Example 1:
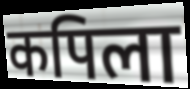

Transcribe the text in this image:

कपिला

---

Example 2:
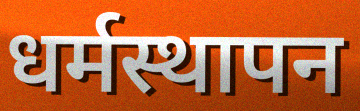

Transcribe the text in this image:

धर्मस्थापन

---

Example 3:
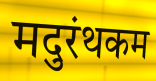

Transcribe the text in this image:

मदुरंथकम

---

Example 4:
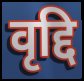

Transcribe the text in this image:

वृद्दि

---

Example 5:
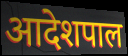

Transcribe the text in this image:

आदेशपाल